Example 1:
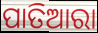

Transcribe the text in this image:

ପାତିଆରା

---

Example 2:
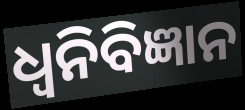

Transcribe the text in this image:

ଧ୍ୱନିବିଜ୍ଞାନ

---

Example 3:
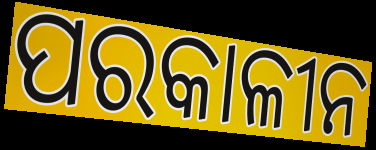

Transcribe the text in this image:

ପରକାଳୀନ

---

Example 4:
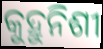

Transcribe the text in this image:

କୁହୁନିଶୀ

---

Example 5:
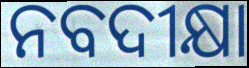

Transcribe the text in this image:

ନବଦୀକ୍ଷା